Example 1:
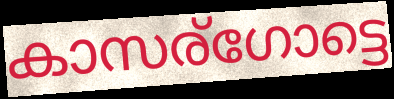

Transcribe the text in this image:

കാസര്ഗോട്ടെ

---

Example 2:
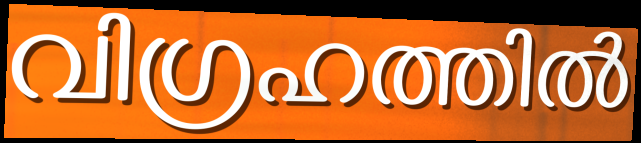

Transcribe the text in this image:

വിഗ്രഹത്തിൽ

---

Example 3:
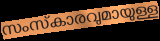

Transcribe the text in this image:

സംസ്‌കാരവുമായുള്ള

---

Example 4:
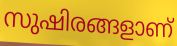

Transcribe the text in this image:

സുഷിരങ്ങളാണ്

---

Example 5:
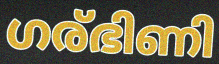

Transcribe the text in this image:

ഗര്ഭിണി